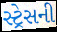
સ્ટ્રેસની